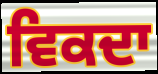
ਵਿਕਦਾ